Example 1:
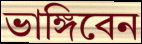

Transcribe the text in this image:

ভাঙ্গিবেন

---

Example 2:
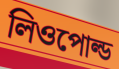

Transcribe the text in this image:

লিওপোল্ড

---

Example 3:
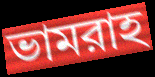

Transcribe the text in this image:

ভামরাহ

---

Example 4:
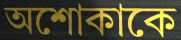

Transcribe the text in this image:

অশোকাকে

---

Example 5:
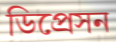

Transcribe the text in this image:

ডিপ্রেসন